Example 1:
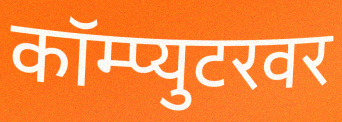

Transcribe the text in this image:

कॉम्प्युटरवर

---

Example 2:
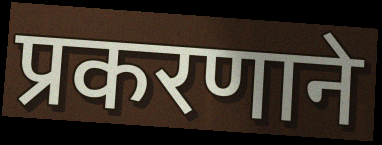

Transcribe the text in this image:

प्रकरणाने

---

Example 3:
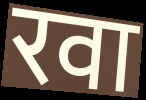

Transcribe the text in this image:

रवा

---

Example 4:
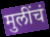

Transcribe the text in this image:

मुलींचं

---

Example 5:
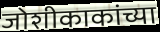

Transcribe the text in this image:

जोशीकाकांच्या